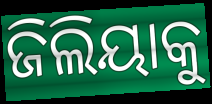
ଜିଲିୟାକୁ